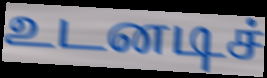
உடனடிச்